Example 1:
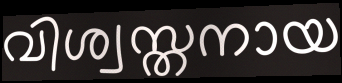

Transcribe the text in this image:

വിശ്വസ്തനായ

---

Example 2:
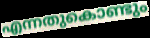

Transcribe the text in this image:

എന്നതുകൊണ്ടും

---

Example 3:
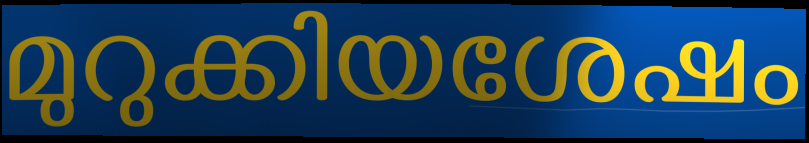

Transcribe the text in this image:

മുറുക്കിയശേഷം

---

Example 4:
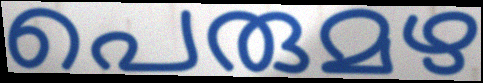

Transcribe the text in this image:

പെരുമഴ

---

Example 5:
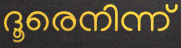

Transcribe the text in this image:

ദൂരെനിന്ന്